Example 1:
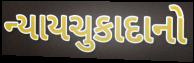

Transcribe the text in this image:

ન્યાયચુકાદાનો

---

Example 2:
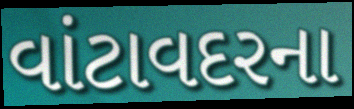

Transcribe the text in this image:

વાંટાવદરના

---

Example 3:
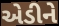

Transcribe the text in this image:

એડીને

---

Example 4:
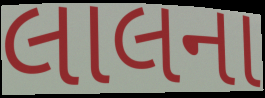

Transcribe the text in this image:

લાલના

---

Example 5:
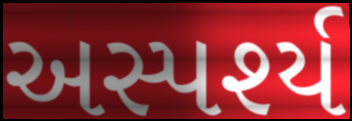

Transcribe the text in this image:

અસ્પર્શ્ય